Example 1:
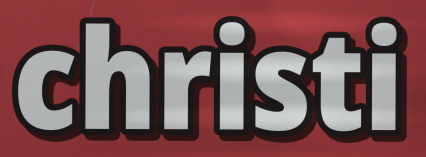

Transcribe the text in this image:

christi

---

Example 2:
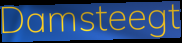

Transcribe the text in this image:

Damsteegt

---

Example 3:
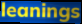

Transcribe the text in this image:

leanings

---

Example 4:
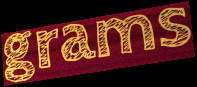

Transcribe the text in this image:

grams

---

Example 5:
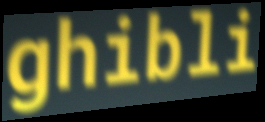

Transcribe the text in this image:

ghibli